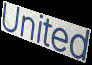
United